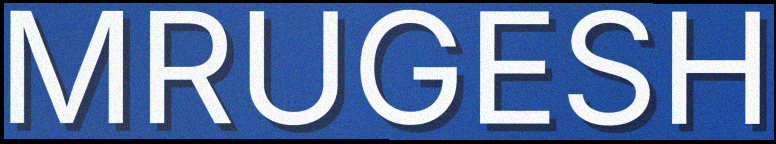
MRUGESH